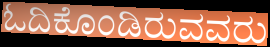
ಓದಿಕೊಂಡಿರುವವರು